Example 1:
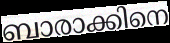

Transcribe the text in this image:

ബാരാക്കിനെ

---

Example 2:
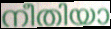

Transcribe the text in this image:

നീതിയാ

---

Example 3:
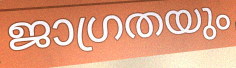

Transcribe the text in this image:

ജാഗ്രതയും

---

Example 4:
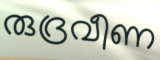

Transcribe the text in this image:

രുദ്രവീണ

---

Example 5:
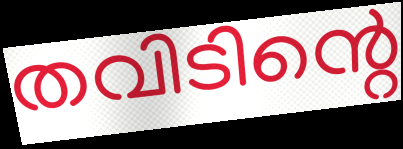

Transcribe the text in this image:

തവിടിന്റെ